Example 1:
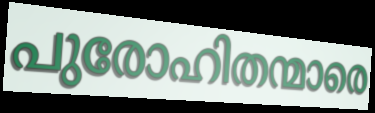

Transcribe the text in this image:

പുരോഹിതന്മാരെ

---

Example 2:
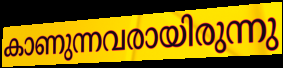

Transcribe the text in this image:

കാണുന്നവരായിരുന്നു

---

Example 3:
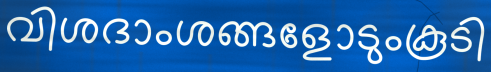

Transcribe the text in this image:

വിശദാംശങ്ങളോടുംകൂടി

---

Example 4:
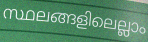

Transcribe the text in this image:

സ്ഥലങ്ങളിലെല്ലാം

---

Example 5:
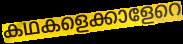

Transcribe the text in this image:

കഥകളെക്കാളേറെ